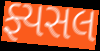
ફ્યસલ